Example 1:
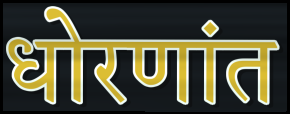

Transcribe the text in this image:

धोरणांत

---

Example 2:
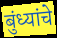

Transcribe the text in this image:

बुंध्यांचे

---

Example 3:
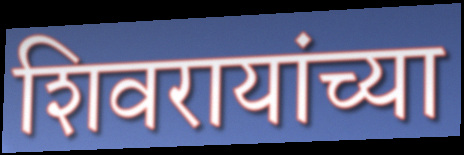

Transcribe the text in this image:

शिवरायांच्या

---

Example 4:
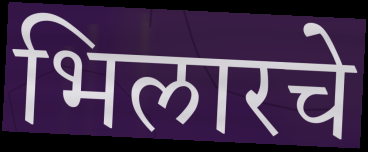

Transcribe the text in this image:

भिलारचे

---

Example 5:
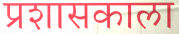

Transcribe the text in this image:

प्रशासकाला